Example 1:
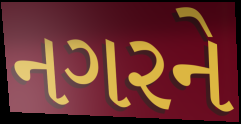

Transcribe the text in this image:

નગરને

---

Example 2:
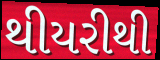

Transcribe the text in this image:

થીયરીથી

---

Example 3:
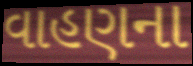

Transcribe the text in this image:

વાહણના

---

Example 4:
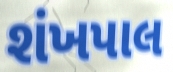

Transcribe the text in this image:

શંખપાલ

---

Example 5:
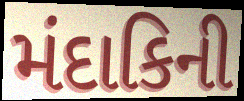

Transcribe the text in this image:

મંદાકિની